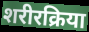
शरीरक्रिया